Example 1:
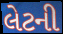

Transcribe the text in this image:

લેટની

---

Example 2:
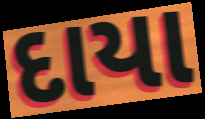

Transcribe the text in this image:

દાયા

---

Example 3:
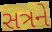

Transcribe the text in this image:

સત્રને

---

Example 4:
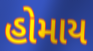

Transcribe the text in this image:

હોમાય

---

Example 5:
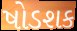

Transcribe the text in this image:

ષોડશક